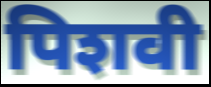
पिशवी